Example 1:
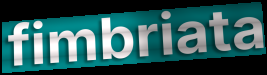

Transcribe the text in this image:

fimbriata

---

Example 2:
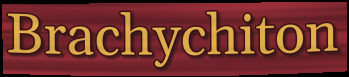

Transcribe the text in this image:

Brachychiton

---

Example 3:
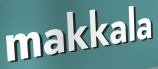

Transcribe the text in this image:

makkala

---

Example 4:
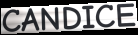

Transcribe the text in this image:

CANDICE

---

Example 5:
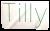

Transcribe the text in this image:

Tilly